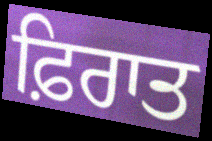
ਫ਼ਿਰਾਤ